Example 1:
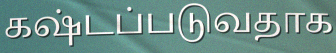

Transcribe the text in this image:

கஷ்டப்படுவதாக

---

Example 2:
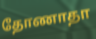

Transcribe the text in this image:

தோணாதா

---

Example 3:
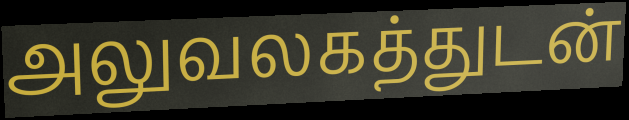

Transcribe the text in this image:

அலுவலகத்துடன்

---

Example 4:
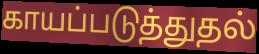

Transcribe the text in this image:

காயப்படுத்துதல்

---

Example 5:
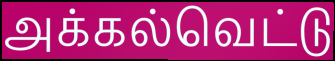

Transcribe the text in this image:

அக்கல்வெட்டு